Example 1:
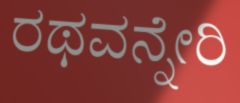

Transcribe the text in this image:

ರಥವನ್ನೇರಿ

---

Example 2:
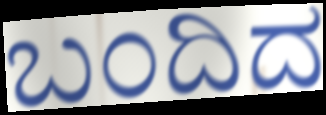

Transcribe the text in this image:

ಬಂದಿದ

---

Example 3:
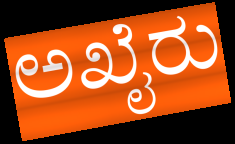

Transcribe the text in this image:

ಅಖೈರು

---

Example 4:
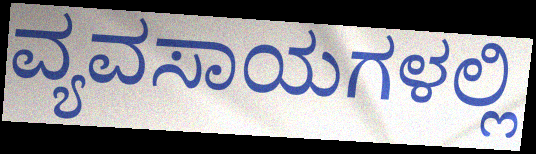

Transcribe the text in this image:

ವ್ಯವಸಾಯಗಳಲ್ಲಿ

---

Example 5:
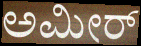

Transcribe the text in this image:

ಅಮೀರ್